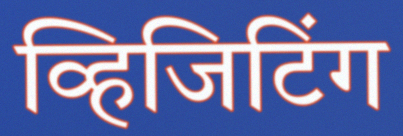
व्हिजिटिंग